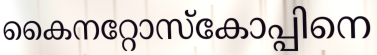
കൈനറ്റോസ്കോപ്പിനെ